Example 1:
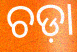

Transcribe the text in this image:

ଚଡ଼ା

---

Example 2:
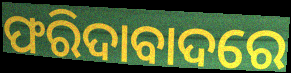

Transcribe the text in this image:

ଫରିଦାବାଦରେ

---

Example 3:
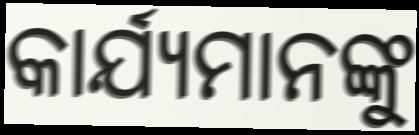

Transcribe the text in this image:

କାର୍ଯ୍ୟମାନଙ୍କୁ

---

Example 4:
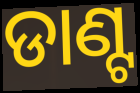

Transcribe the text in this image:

ଡାଣ୍ଟ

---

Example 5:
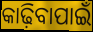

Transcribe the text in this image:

କାଢ଼ିବାପାଇଁ